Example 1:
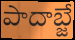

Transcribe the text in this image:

పాదాబ్జే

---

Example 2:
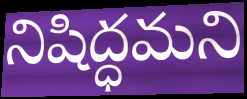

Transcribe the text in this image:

నిషిద్ధమని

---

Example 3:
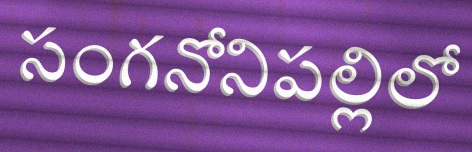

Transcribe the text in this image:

సంగనోనిపల్లిలో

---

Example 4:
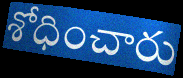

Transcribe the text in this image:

శోధించారు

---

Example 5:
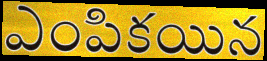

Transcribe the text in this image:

ఎంపికయిన